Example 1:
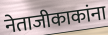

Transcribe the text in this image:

नेताजीकाकांना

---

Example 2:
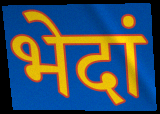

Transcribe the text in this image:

भेदां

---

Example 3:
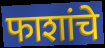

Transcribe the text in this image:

फाशांचे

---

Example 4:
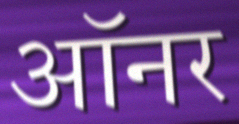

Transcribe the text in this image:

ऑनर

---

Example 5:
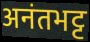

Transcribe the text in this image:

अनंतभट्ट